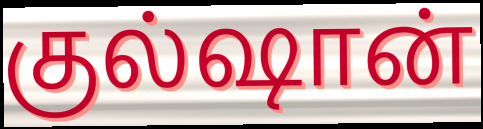
குல்ஷான்